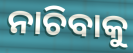
ନାଚିବାକୁ